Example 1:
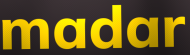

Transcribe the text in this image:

madar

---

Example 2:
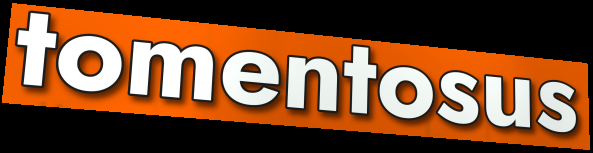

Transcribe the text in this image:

tomentosus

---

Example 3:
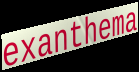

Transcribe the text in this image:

exanthema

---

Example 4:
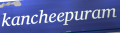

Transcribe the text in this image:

kancheepuram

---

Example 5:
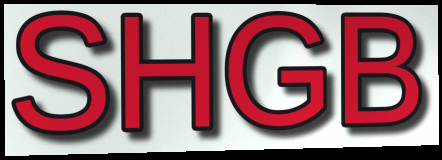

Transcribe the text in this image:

SHGB